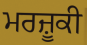
ਮਰਜ਼ੂਕੀ